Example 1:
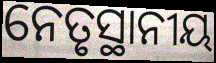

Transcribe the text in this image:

ନେତୃସ୍ଥାନୀୟ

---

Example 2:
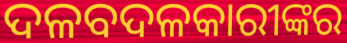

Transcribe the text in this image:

ଦଳବଦଳକାରୀଙ୍କର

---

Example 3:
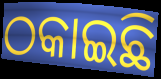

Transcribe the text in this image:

ଠକାଇଛି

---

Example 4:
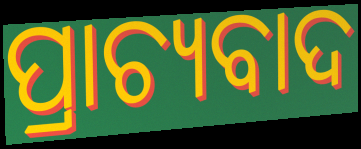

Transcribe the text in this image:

ପ୍ରାଚ୍ୟବାଦ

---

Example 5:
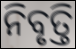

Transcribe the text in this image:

ନିବୃତ୍ତି